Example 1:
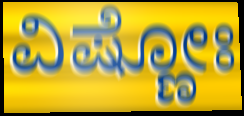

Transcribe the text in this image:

ವಿಷ್ಣೋಃ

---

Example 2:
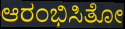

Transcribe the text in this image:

ಆರಂಭಿಸಿತೋ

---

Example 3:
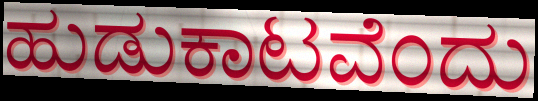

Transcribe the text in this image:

ಹುಡುಕಾಟವೆಂದು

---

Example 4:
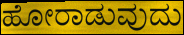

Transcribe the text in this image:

ಹೋರಾಡುವುದು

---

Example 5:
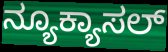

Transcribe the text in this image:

ನ್ಯೂಕ್ಯಾಸಲ್